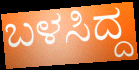
ಬಳಸಿದ್ದ